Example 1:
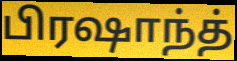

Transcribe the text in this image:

பிரஷாந்த்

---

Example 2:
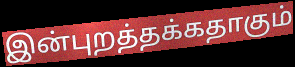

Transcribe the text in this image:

இன்புறத்தக்கதாகும்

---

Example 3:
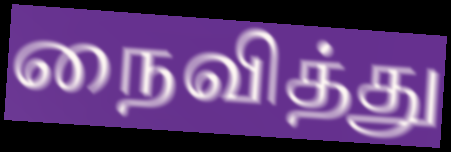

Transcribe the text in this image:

நைவித்து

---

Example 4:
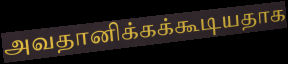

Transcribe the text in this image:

அவதானிக்கக்கூடியதாக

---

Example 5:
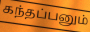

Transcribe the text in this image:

கந்தப்பனும்